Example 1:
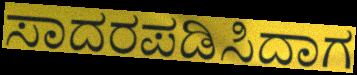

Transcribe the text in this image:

ಸಾದರಪಡಿಸಿದಾಗ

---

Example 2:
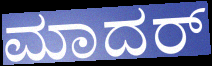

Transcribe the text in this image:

ಮಾದರ್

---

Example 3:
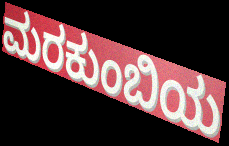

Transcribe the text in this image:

ಮರಕುಂಬಿಯ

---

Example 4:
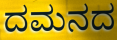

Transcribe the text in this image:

ದಮನದ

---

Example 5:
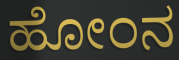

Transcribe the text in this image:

ಹೋಂನ